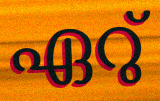
ഏറു്